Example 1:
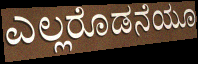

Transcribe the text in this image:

ಎಲ್ಲರೊಡನೆಯೂ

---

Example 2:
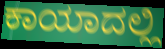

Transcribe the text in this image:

ಕಾಯಾದಲ್ಲಿ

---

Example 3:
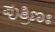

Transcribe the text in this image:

ಪುತ್ರಿಣಃ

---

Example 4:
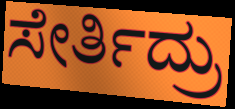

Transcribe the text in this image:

ಸೇರ್ತಿದ್ರು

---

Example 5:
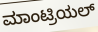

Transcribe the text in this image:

ಮಾಂಟ್ರಿಯಲ್